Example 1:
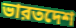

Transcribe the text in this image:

ভারতদেশ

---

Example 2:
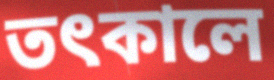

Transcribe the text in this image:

তৎকালে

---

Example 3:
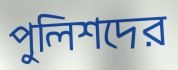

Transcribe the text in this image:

পুলিশদের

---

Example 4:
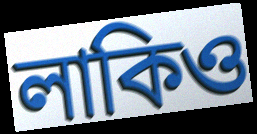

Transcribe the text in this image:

লাকিও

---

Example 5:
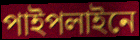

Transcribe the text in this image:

পাইপলাইনে